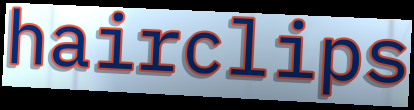
hairclips